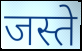
जस्ते